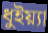
ধুইয়্যা